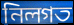
নিলগত